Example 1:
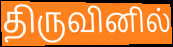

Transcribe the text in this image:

திருவினில்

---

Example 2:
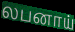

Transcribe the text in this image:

லபனாய்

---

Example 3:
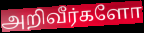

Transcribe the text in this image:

அறிவீர்களோ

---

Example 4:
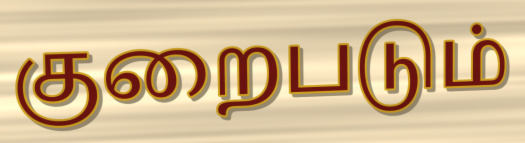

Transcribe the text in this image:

குறைபடும்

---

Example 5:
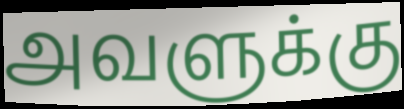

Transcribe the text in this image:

அவளுக்கு